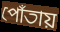
পোঁতায়